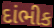
દાંભીક